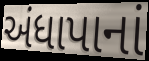
અંધાપાનાં